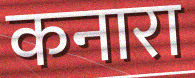
कनारा